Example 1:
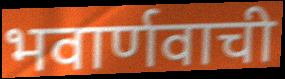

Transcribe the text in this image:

भवार्णवाची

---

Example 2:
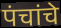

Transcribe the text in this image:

पंचांचे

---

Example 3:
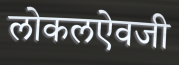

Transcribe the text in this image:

लोकलऐवजी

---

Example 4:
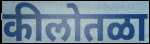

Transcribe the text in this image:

कीलोतळा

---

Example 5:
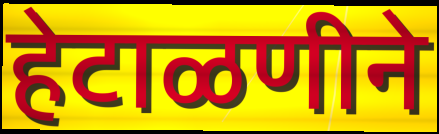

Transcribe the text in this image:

हेटाळणीने